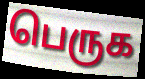
பெருக